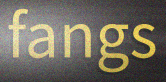
fangs